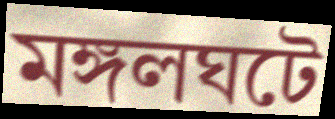
মঙ্গলঘটে